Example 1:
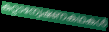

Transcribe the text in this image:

കുറ്റാന്വേഷണകഥകൾ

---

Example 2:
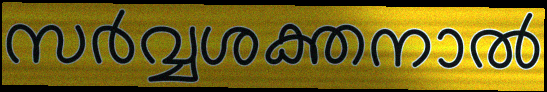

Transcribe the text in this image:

സർവ്വശക്തനാൽ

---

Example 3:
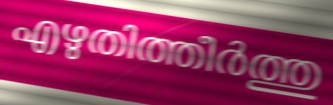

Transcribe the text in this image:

എഴുതിത്തീർത്തു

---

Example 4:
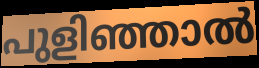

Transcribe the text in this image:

പുളിഞ്ഞാൽ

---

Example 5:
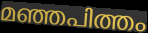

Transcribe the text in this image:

മഞ്ഞപിത്തം